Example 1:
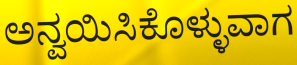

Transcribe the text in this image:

ಅನ್ವಯಿಸಿಕೊಳ್ಳುವಾಗ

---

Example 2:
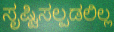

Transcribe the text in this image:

ಸೃಷ್ಟಿಸಲ್ಪಡಲಿಲ್ಲ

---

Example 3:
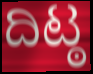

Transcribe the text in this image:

ದಿಟ್ಠ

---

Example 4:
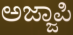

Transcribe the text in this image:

ಅಜ್ಜಾಪಿ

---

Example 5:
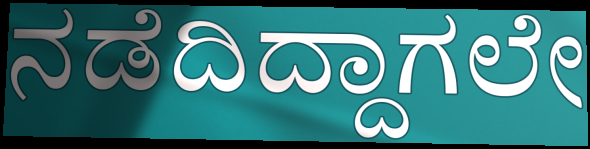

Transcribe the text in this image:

ನಡೆದಿದ್ದಾಗಲೇ